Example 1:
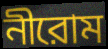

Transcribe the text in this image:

নীরোম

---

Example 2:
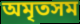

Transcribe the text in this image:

অমৃতসম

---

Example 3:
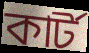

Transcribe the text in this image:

কার্ট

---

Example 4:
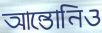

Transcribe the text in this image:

আন্তোনিও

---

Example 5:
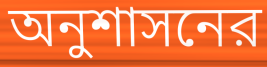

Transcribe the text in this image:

অনুশাসনের